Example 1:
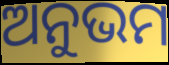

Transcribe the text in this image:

ଅନୁଭମ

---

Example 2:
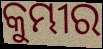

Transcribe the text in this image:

କୁମ୍ଭୀର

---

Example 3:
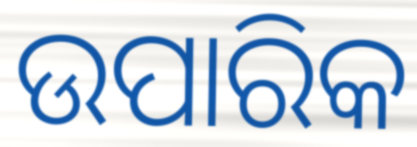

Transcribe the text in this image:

ଉପାରିକ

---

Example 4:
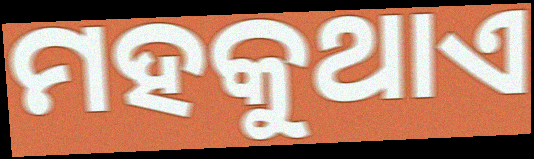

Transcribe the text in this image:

ମହକୁଥାଏ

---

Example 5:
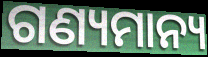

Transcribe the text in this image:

ଗଣ୍ୟମାନ୍ୟ